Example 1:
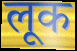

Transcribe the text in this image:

लूक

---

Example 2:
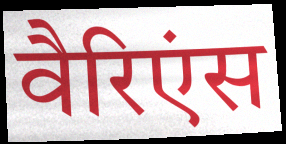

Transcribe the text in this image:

वैरिएंस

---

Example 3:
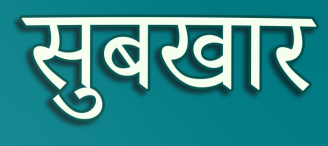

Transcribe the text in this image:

सुबखार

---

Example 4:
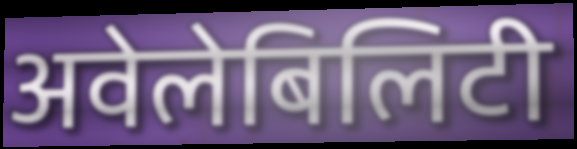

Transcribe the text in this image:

अवेलेबिलिटी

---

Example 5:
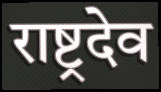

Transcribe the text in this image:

राष्ट्रदेव